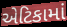
એટિકામાં